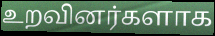
உறவினர்களாக